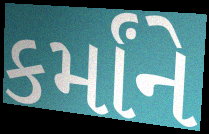
કર્માંને